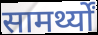
सामर्थ्यों